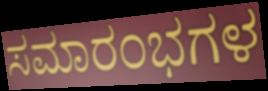
ಸಮಾರಂಭಗಳ